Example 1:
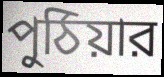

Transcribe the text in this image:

পুঠিয়ার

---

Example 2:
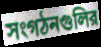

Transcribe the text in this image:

সংগঠনগুলির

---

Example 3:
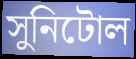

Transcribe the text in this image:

সুনিটোল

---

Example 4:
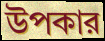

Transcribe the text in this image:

উপকার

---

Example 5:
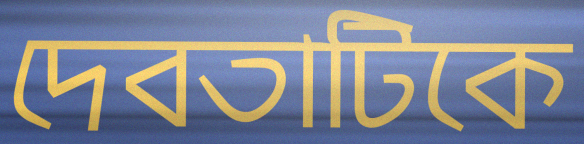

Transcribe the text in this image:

দেবতাটিকে